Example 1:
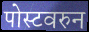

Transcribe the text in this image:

पोस्टवरुन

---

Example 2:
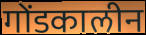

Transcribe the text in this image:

गोंडकालीन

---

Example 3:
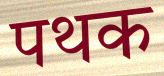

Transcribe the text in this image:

पथक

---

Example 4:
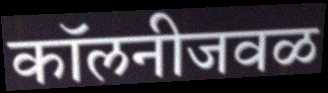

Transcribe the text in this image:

कॉलनीजवळ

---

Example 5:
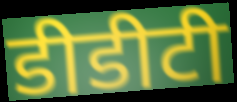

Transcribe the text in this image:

डीडीटी